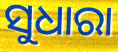
ସୁଧାରା